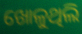
ଖୋଳୁଥିଲି